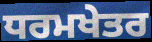
ਧਰਮਖੇਤਰ